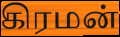
கிரமன்